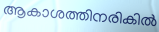
ആകാശത്തിനരികിൽ